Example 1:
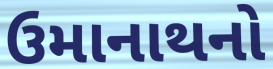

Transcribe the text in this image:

ઉમાનાથનો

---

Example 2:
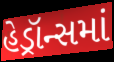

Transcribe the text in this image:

હેડ્રૉન્સમાં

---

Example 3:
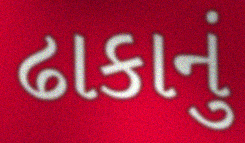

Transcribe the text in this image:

ઢાકાનું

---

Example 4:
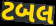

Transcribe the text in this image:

ટબલ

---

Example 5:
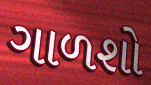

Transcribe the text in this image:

ગાળશો